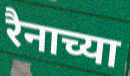
रैनाच्या